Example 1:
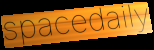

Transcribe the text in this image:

spacedaily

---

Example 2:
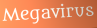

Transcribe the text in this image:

Megavirus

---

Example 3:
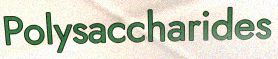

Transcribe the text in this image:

Polysaccharides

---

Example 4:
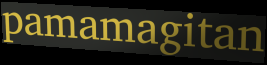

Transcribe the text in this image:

pamamagitan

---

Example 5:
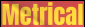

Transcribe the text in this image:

Metrical